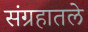
संग्रहातले